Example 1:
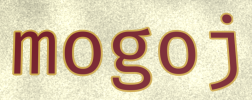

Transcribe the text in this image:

mogoj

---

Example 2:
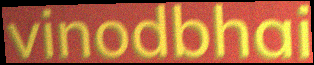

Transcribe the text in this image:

vinodbhai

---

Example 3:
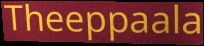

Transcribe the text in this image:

Theeppaala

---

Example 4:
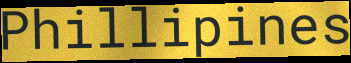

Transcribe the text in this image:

Phillipines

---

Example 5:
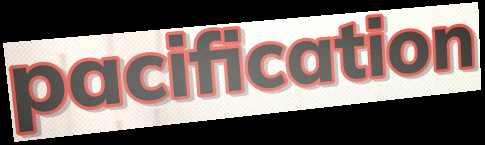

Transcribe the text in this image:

pacification